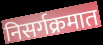
निसर्गक्रमात